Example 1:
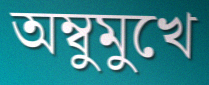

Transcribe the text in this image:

অম্বুমুখে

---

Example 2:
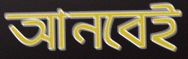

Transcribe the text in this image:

আনবেই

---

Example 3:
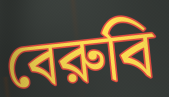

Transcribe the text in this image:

বেরুবি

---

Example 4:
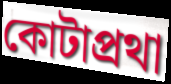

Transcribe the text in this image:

কোটাপ্রথা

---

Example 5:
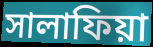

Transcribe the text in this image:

সালাফিয়া